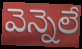
వెన్నెలే